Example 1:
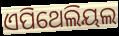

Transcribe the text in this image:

ଏପିଥେଲିୟଲ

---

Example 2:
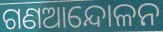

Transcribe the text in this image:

ଗଣଆନ୍ଦୋଳନ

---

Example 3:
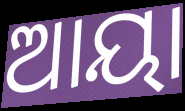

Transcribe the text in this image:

ଆୟା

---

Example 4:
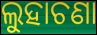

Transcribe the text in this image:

ଲୁହାଚଣା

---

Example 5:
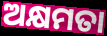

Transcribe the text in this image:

ଅକ୍ଷମତା